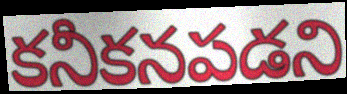
కనీకనపడని